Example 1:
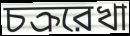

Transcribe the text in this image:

চক্ররেখা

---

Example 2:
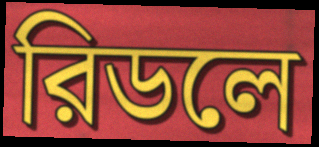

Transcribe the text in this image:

রিডলে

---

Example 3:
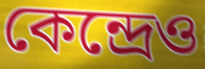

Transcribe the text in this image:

কেন্দ্রেও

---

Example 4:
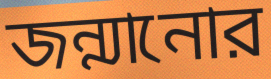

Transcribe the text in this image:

জন্মানোর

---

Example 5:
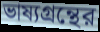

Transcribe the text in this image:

ভাষ্যগ্রন্থের